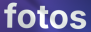
fotos